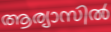
ആര്യാസിൽ